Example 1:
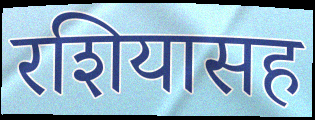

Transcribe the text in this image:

रशियासह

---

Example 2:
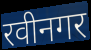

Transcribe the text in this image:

रवीनगर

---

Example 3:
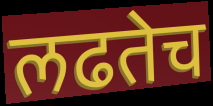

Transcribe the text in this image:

लढतेच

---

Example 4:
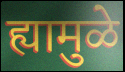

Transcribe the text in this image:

ह्यामुळे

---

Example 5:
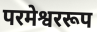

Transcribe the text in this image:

परमेश्वररूप